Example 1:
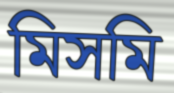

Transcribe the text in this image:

মিসমি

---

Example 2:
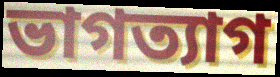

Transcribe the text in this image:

ভাগত্যাগ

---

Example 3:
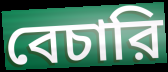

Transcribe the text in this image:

বেচারি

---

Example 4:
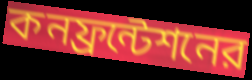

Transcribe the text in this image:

কনফ্রন্টেশনের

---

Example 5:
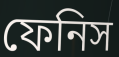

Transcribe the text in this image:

ফেনিস